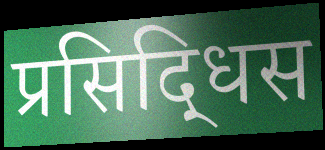
प्रसिद्धिस